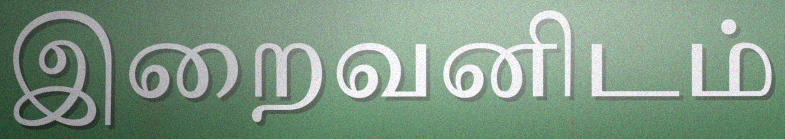
இறைவனிடம்